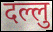
दल्लु